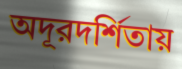
অদূরদর্শিতায়